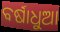
ବର୍ଷାଧୁଆ